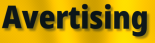
Avertising